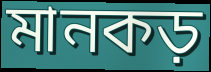
মানকড়